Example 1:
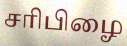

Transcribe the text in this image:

சரிபிழை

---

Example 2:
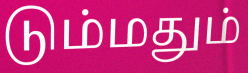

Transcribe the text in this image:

டும்மதும்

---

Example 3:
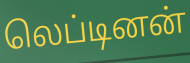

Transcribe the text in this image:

லெப்டினன்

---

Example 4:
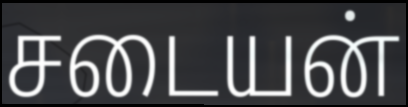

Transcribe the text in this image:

சடையன்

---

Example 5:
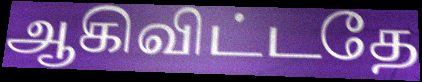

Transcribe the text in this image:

ஆகிவிட்டதே